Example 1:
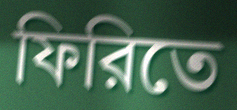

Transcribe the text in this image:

ফিরিতে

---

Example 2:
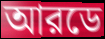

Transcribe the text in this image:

আরডে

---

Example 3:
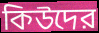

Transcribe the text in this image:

কিউদের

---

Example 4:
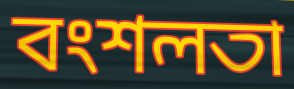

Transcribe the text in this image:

বংশলতা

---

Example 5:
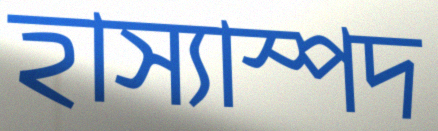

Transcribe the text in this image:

হাস্যাস্পদ